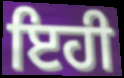
ਇਹੀ